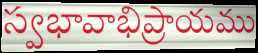
స్వభావాభిప్రాయము